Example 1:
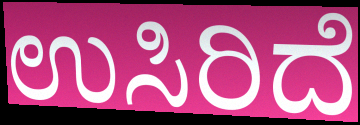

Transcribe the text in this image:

ಉಸಿರಿದೆ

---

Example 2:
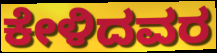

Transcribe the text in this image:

ಕೇಳಿದವರ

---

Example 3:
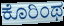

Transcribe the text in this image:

ಕೊರಿಂಥ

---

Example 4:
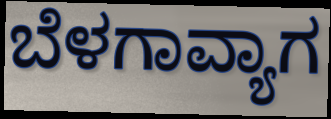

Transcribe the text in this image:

ಬೆಳಗಾವ್ಯಾಗ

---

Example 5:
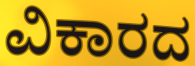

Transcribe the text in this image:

ವಿಕಾರದ